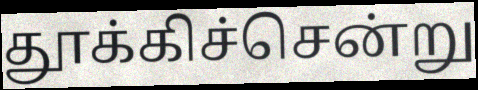
தூக்கிச்சென்று